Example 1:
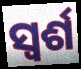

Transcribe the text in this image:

ସ୍ୱର୍ଶ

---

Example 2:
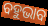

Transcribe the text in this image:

ବହୁଭାବ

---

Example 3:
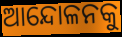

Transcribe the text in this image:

ଆନ୍ଦୋଳନକୁ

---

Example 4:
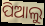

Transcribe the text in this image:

ପିଆଲୁ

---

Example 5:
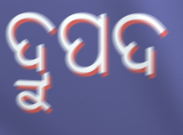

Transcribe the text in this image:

ଦ୍ରୁପଦ